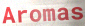
Aromas